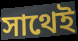
সাথেই